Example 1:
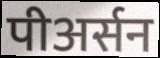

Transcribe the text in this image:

पीअर्सन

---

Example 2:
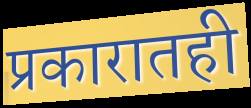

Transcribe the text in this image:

प्रकारातही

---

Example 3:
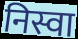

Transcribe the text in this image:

निस्वा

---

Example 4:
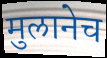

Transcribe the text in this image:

मुलानेच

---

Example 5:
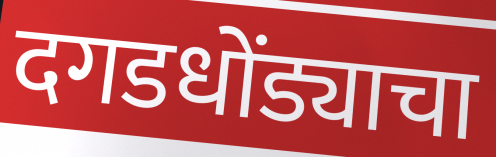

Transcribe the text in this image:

दगडधोंड्याचा